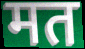
मत